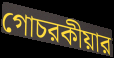
গোচরকীয়ার